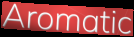
Aromatic